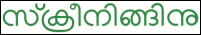
സ്ക്രീനിങ്ങിനു